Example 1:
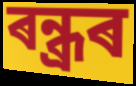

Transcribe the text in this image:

ৰন্ধ্ৰৰ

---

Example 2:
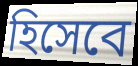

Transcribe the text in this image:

হিসেবে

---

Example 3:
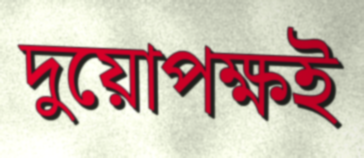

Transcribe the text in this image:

দুয়োপক্ষই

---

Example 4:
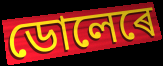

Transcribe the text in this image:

ডোলেৰে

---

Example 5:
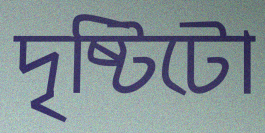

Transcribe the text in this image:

দৃষ্টিটো